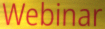
Webinar